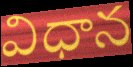
విధాన